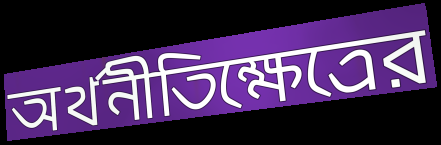
অর্থনীতিক্ষেত্রের